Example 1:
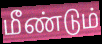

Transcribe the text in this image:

மீண்டும்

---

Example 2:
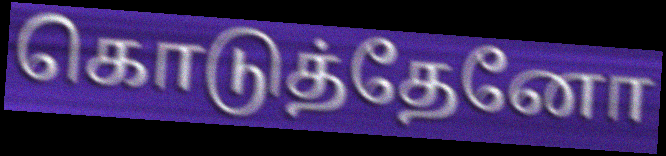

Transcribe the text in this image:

கொடுத்தேனோ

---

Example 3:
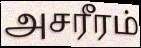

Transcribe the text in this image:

அசரீரம்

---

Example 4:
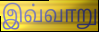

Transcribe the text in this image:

இவ்வாறு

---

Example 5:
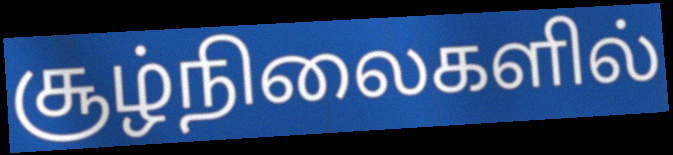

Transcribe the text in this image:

சூழ்நிலைகளில்